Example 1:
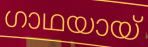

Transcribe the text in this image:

ഗാഥയായ്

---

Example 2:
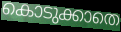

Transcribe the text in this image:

കൊടുക്കാതെ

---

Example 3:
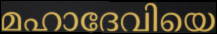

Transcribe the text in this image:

മഹാദേവിയെ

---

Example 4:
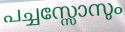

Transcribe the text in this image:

പച്ചസ്സോസും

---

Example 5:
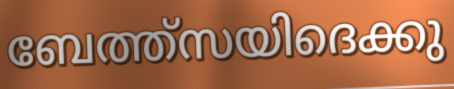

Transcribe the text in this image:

ബേത്ത്സയിദെക്കു